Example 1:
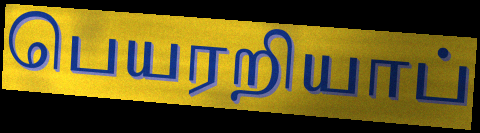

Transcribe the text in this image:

பெயரறியாப்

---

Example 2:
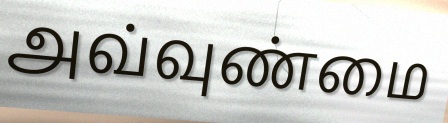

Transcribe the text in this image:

அவ்வுண்மை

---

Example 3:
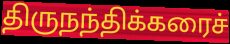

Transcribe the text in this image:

திருநந்திக்கரைச்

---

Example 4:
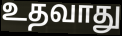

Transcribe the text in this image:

உதவாது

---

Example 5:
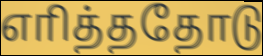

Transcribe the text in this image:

எரித்ததோடு